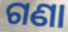
ଗଣା